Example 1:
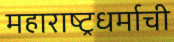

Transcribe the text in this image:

महाराष्ट्रधर्माची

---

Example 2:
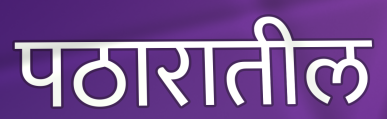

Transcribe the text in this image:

पठारातील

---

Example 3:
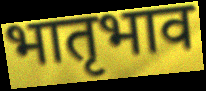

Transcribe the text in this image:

भातृभाव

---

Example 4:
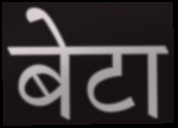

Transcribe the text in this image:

बेटा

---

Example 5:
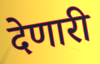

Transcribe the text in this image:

देणारी